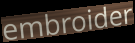
embroider